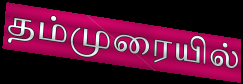
தம்முரையில்